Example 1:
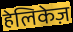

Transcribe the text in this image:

हेलिकेज़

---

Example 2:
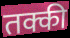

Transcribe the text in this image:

तक्की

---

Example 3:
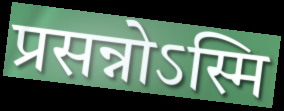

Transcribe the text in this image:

प्रसन्नोऽस्मि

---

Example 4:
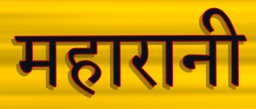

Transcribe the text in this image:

महारानी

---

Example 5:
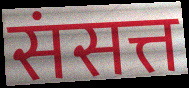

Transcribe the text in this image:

संसत्त